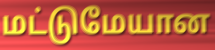
மட்டுமேயான